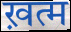
ख़त्‍म